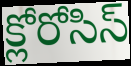
క్లోరోసిస్